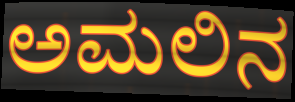
ಅಮಲಿನ